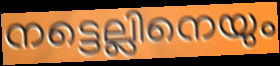
നട്ടെല്ലിനെയും